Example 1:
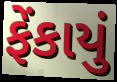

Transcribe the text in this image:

ફેંકાયું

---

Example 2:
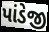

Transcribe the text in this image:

પાંડેજી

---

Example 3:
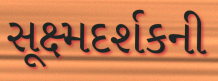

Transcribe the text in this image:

સૂક્ષ્મદર્શકની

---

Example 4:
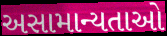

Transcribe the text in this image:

અસામાન્યતાઓ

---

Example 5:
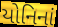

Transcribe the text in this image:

યોનિનાં